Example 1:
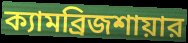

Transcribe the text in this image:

ক্যামব্রিজশায়ার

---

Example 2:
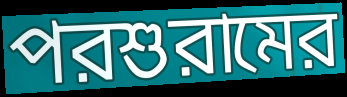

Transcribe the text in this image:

পরশুরামের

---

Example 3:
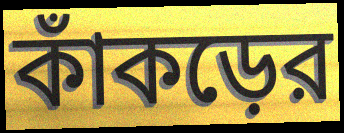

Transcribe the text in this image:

কাঁকড়ের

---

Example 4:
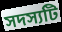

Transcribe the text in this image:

সদস্যটি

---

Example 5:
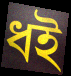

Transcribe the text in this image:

ধই